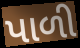
પાળી